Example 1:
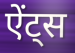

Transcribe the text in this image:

ऐंट्स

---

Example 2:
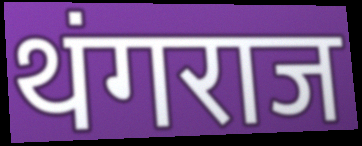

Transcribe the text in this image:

थंगराज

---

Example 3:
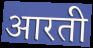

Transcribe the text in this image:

आरती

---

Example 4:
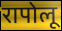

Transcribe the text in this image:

रापोलू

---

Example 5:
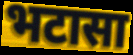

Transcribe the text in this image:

भटासा